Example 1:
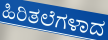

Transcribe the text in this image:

ಹಿರಿತಲೆಗಳಾದ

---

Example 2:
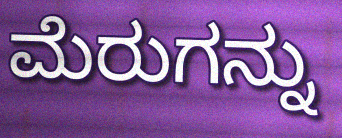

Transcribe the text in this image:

ಮೆರುಗನ್ನು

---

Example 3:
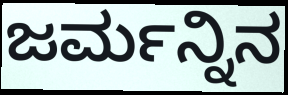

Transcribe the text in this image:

ಜರ್ಮನ್ನಿನ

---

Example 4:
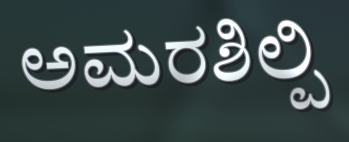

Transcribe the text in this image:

ಅಮರಶಿಲ್ಪಿ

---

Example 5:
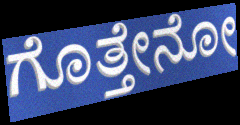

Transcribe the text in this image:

ಗೊತ್ತೇನೋ